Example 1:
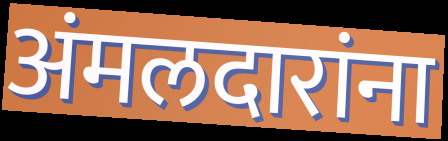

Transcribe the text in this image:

अंमलदारांना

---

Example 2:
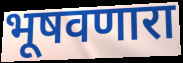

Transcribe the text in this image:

भूषवणारा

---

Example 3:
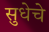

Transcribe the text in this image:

सुधेचे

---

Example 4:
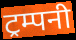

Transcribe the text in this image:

ट्रम्पनी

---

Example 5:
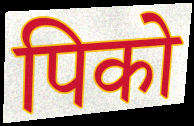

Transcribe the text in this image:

पिको